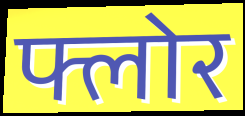
फ्लोर